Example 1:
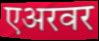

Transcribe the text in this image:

एअरवर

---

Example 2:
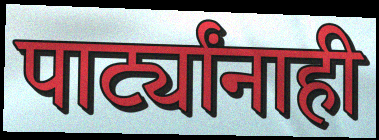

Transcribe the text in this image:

पार्ट्यांनाही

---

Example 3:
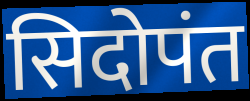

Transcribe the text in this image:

सिदोपंत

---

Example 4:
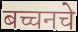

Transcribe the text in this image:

बच्चनचे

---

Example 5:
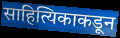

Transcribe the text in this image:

साहित्यिकाकडून